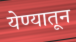
येण्यातून